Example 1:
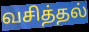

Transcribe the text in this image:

வசித்தல்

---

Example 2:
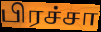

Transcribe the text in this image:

பிரச்சா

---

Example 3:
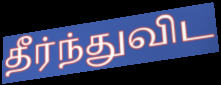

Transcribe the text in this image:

தீர்ந்துவிட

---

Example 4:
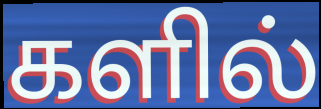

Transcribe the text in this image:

களில்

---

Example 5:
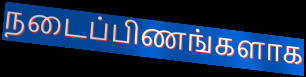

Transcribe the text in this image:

நடைப்பிணங்களாக